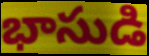
భాసుడి